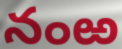
నంఱ